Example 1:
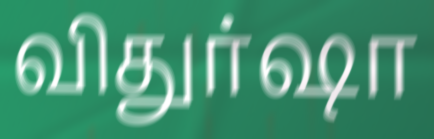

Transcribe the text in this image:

விதுர்ஷா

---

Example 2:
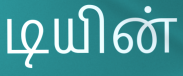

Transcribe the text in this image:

டியின்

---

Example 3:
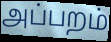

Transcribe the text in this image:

அப்பறம்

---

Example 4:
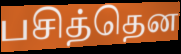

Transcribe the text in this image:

பசித்தென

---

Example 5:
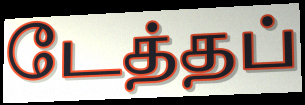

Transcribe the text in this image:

டேத்தப்